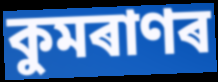
কুমৰাণৰ